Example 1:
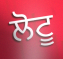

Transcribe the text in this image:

ਲੋਟੂ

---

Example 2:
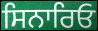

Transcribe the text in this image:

ਸਿਨਾਰਿਓ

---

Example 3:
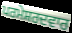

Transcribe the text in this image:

ਪਰਮੇਸ਼ਰਦਵਾਰ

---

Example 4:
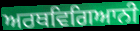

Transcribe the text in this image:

ਅਰਥਵਿਗਿਆਨੀ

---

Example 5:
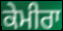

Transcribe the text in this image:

ਕੇਮੀਰਾ